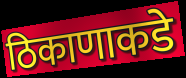
ठिकाणाकडे